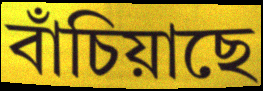
বাঁচিয়াছে